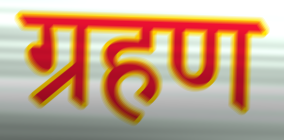
ग्रहण